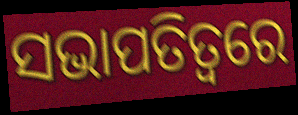
ସଭାପତିତ୍ଵରେ